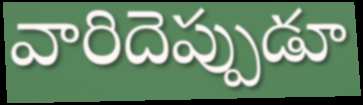
వారిదెప్పుడూ